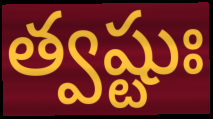
త్వష్టుః